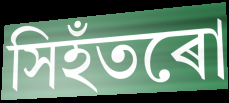
সিহঁতৰো